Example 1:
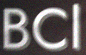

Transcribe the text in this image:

BCl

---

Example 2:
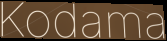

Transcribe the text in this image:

Kodama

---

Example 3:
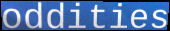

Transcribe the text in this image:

oddities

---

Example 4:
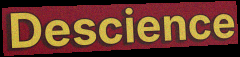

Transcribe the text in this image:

Descience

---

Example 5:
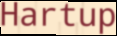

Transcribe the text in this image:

Hartup